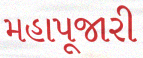
મહાપૂજારી